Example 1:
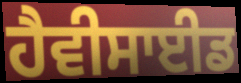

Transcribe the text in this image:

ਹੈਵੀਸਾਈਡ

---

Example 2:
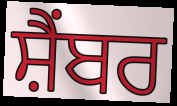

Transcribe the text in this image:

ਸ਼ੈਂਬਰ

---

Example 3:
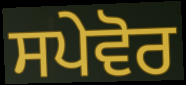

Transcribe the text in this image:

ਸਪੇਵੋਰ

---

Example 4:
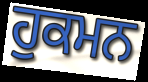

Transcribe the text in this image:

ਹੁਕਮਨ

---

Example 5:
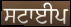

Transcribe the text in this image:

ਸਟਾਈਪ